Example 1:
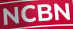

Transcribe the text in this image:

NCBN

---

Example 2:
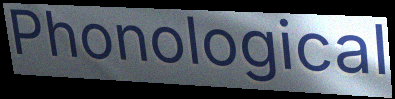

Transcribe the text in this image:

Phonological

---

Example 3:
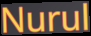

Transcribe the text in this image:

Nurul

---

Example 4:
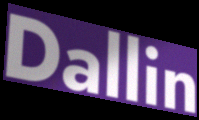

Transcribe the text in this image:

Dallin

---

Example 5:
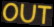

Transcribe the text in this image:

OUT